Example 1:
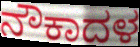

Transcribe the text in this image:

ನೌಕಾದಳ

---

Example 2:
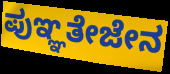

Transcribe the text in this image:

ಪುಞ್ಞತೇಜೇನ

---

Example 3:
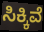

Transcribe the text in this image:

ಸಿಕ್ಕಿವೆ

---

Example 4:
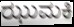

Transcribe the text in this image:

ಝುಮಕಿ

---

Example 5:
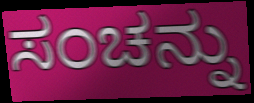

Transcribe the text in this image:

ಸಂಚನ್ನು